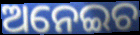
ଅନେଇଚ